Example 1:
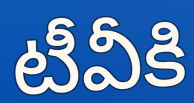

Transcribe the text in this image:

టీవీకి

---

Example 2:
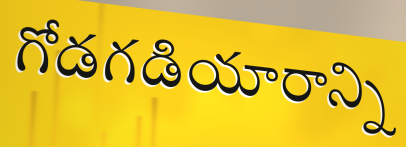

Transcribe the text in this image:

గోడగడియారాన్ని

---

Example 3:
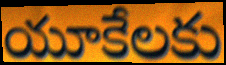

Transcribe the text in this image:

యూకేలకు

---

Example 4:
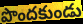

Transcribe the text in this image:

పొందకుండు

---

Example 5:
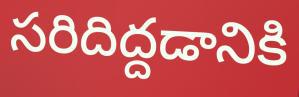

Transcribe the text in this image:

సరిదిద్దడానికి